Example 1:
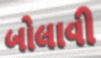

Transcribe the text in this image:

બોલાવી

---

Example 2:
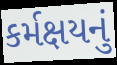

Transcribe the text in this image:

કર્મક્ષયનું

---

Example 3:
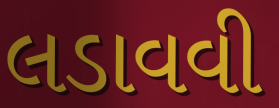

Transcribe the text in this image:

લડાવવી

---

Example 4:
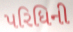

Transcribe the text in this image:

પરિધિની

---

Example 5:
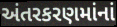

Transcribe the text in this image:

અંતરકરણમાંનાં